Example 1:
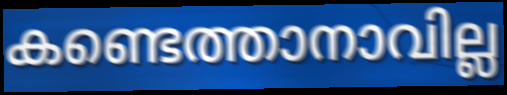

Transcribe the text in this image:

കണ്ടെത്താനാവില്ല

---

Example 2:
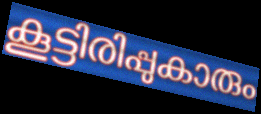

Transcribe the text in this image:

കൂട്ടിരിപ്പുകാരും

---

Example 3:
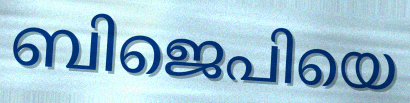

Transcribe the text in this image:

ബിജെപിയെ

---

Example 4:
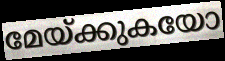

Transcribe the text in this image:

മേയ്ക്കുകയോ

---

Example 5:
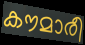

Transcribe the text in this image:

കൗമാരീ